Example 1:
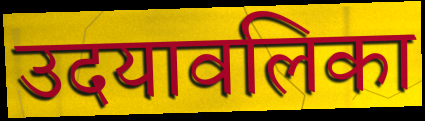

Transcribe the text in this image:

उदयावलिका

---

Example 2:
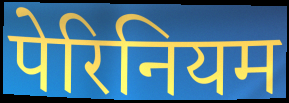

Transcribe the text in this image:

पेरिनियम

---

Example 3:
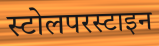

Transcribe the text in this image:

स्टोलपरस्टाइन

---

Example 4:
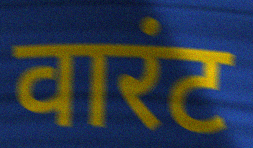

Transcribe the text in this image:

वारंट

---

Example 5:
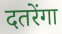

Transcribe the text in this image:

दतरेंगा